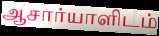
ஆசார்யாளிடம்